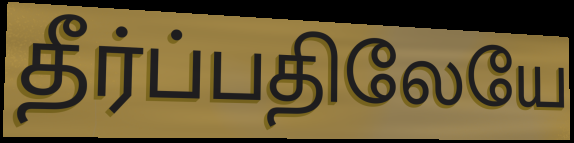
தீர்ப்பதிலேயே